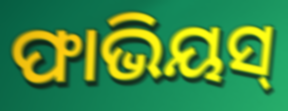
ଫାଭିୟସ୍